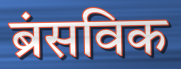
ब्रंसविक